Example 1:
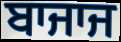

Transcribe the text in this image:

ਬਾਜਾਜ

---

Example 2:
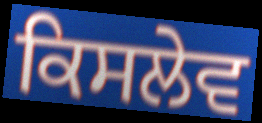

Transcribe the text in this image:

ਕਿਸਲੇਵ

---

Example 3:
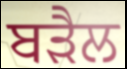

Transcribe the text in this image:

ਬੜੈਲ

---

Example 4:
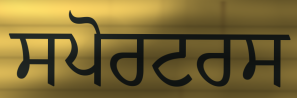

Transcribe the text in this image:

ਸਪੋਰਟਰਸ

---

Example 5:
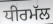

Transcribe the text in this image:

ਧੀਰਮੱਲ